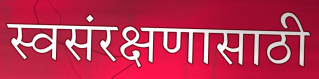
स्वसंरक्षणासाठी